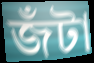
জঁটা